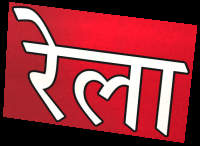
रेला